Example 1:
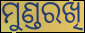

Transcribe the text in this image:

ମୁଣ୍ଡରଖି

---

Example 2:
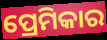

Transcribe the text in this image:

ପ୍ରେମିକାର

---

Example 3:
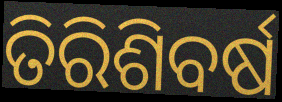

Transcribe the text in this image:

ତିରିଶିବର୍ଷ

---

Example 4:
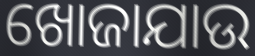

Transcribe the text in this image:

ଖୋଜାଯାଉ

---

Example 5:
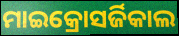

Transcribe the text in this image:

ମାଇକ୍ରୋସର୍ଜିକାଲ